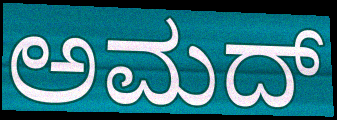
ಅಮದ್